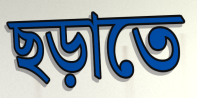
ছড়াতে